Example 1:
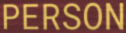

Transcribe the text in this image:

PERSON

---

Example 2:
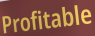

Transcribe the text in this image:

Profitable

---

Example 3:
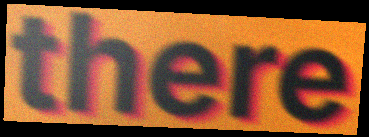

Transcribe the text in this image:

there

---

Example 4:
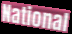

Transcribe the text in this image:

National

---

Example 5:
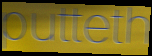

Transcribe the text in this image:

putteth